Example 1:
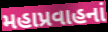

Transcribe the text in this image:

મહાપ્રવાહનાં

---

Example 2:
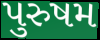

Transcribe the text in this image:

પુરુષમ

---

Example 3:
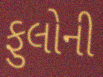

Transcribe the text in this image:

ફુલોની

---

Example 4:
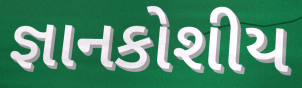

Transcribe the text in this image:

જ્ઞાનકોશીય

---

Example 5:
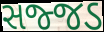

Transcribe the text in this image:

સજ્જડ